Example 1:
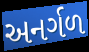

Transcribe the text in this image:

અનર્ગળ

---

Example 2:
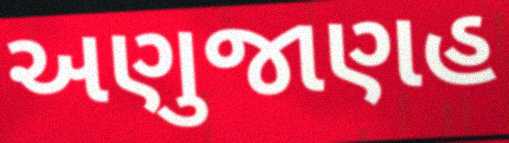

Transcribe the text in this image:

અણુજાણહ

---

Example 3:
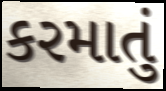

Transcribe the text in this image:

કરમાતું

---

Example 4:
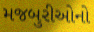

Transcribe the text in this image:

મજબુરીઓનો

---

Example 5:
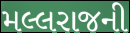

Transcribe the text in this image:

મલ્લરાજની